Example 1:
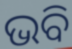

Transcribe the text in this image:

ଭବି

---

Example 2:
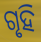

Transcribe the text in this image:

ଗୃହି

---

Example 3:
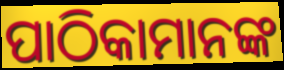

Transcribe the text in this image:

ପାଠିକାମାନଙ୍କ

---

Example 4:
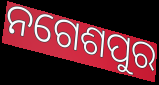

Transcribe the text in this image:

ନଗେଶପୁର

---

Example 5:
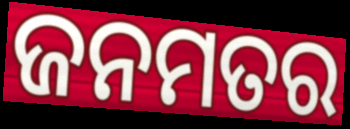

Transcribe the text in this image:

ଜନମତର